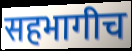
सहभागीच